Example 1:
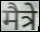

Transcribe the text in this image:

मैत्रे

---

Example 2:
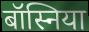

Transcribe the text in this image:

बॉस्निया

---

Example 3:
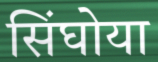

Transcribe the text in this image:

सिंघोया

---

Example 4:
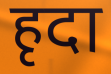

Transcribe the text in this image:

हृदा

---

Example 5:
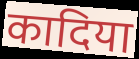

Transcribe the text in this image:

कादिया